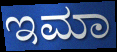
ಇಮಾ